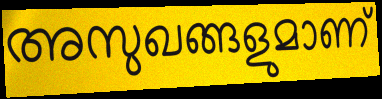
അസുഖങ്ങളുമാണ്